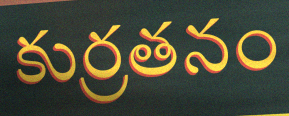
కుర్రతనం